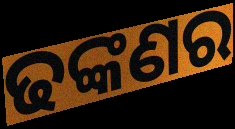
ଢଙ୍କଣର